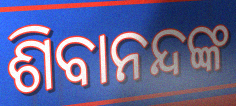
ଶିବାନନ୍ଦଙ୍କ